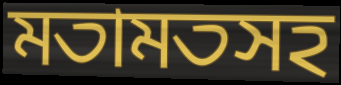
মতামতসহ